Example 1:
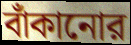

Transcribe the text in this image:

বাঁকানোর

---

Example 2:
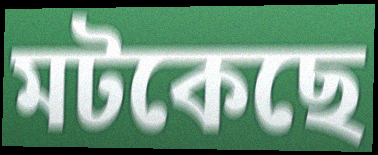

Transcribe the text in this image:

মটকেছে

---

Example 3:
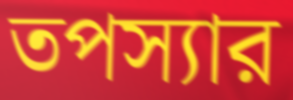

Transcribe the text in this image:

তপস্যার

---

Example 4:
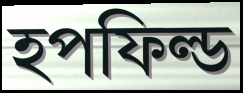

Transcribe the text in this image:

হপফিল্ড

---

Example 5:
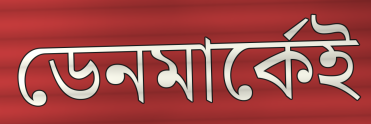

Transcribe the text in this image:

ডেনমার্কেই